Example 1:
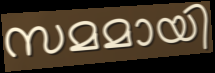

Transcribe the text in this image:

സമമായി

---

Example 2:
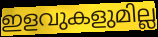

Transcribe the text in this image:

ഇളവുകളുമില്ല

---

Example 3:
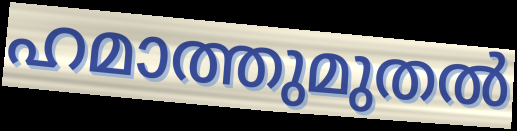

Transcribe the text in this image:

ഹമാത്തുമുതൽ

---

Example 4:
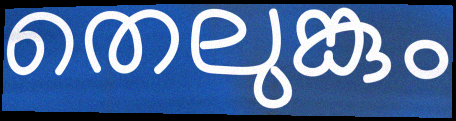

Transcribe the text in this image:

തെലുങ്കും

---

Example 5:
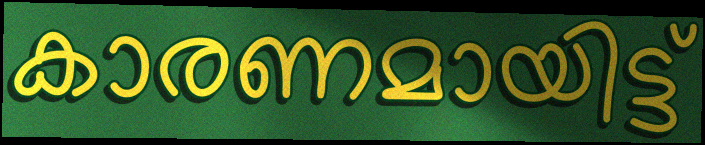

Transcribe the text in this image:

കാരണമായിട്ട്